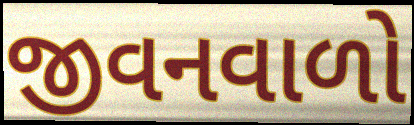
જીવનવાળો